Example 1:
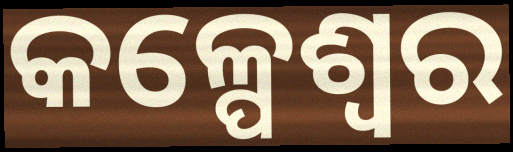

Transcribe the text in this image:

କଳ୍ପେଶ୍ୱର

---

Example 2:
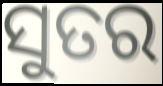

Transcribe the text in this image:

ସୁତର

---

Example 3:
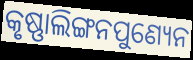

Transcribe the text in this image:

କୃଷ୍ଣାଲିଙ୍ଗନପୁଣ୍ଯେନ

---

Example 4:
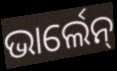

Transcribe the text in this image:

ଭାର୍ଲେନ୍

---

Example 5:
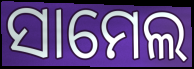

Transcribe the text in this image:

ସାମେଲ